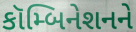
કૉમ્બિનેશનને